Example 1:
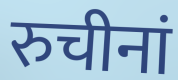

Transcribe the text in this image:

रुचीनां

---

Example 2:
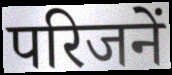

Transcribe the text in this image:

परिजनें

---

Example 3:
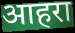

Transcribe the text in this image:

आहरा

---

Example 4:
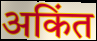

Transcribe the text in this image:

अकिंत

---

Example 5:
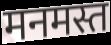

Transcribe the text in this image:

मनमस्त